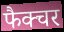
फैक्चर